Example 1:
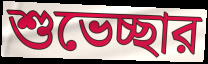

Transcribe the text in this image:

শুভেচ্ছার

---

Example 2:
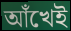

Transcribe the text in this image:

আঁখেই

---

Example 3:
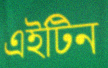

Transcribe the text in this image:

এইটিন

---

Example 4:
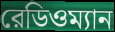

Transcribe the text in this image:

রেডিওম্যান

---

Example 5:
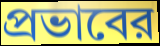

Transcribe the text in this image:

প্রভাবের